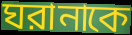
ঘরানাকে